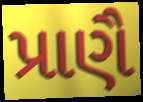
પ્રાણૈ